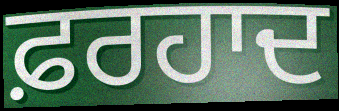
ਫ਼ਰਹਾਦ